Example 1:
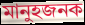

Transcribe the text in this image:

মানুহজনক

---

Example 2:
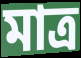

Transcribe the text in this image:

মাত্ৰ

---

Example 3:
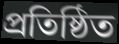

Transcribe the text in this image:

প্ৰতিষ্ঠিত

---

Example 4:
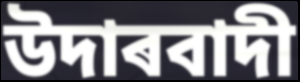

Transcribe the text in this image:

উদাৰবাদী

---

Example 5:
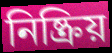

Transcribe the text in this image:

নিষ্ক্ৰিয়